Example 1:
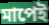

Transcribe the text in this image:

মাপেই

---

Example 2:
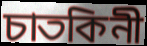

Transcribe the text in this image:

চাতকিনী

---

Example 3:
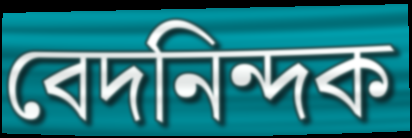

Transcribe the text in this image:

বেদনিন্দক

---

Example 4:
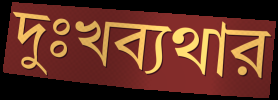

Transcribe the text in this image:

দুঃখব্যথার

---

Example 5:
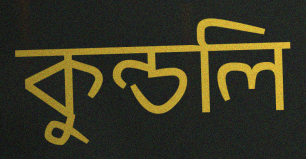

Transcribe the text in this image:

কুন্ডলি